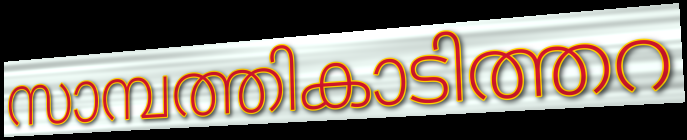
സാമ്പത്തികാടിത്തറ